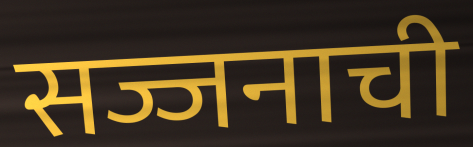
सज्जनाची